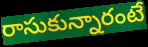
రాసుకున్నారంటే